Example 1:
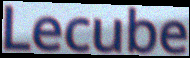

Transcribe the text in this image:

Lecube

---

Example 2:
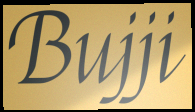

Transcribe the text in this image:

Bujji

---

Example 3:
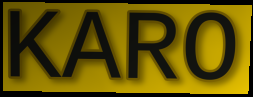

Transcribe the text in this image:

KARO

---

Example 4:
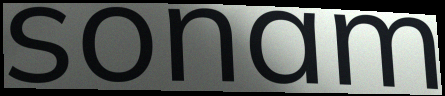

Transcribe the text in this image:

sonam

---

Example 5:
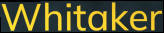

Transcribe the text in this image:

Whitaker